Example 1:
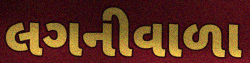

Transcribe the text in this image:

લગનીવાળા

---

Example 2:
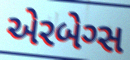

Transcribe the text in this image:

એરબેગ્સ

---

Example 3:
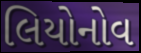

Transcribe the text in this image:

લિયોનોવ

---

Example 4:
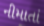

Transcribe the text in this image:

નીમાતાં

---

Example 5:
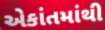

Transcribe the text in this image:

એકાંતમાંથી